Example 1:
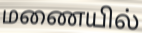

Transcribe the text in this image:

மணையில்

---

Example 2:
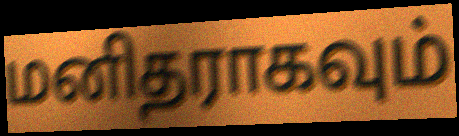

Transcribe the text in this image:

மனிதராகவும்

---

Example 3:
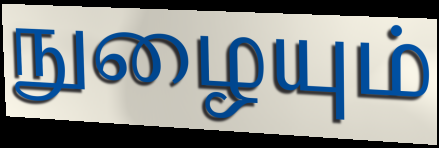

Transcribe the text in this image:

நுழையும்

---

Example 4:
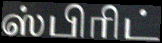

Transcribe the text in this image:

ஸ்பிரிட்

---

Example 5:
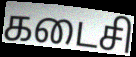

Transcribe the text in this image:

கடைசி